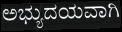
ಅಭ್ಯುದಯವಾಗಿ